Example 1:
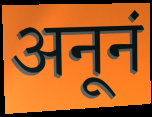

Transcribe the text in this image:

अनूनं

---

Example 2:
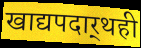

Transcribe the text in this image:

खाद्यपदार्थही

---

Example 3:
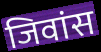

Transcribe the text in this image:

जिवांस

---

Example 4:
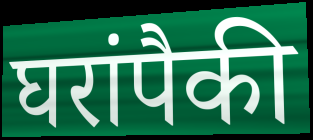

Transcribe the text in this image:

घरांपैकी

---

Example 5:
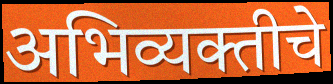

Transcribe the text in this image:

अभिव्यक्तीचे